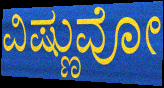
ವಿಷ್ಣುವೋ